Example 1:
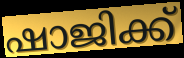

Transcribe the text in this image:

ഷാജിക്ക്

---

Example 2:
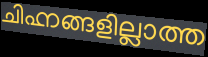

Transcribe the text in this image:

ചിഹ്നങ്ങളില്ലാത്ത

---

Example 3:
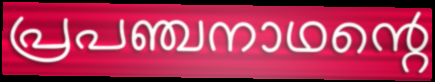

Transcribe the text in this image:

പ്രപഞ്ചനാഥന്റെ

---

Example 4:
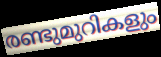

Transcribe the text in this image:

രണ്ടുമുറികളും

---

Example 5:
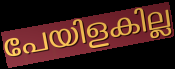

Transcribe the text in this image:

പേയിളകില്ല